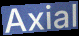
Axial